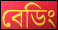
বেডিং